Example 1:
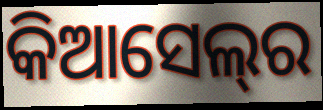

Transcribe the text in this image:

କିଆସେଲ୍‌ର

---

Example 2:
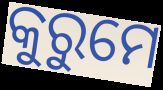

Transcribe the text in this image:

କୁରୁମେ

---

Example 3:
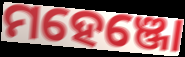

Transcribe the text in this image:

ମହେଞ୍ଜୋ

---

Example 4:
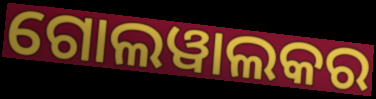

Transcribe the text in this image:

ଗୋଲୱାଲକର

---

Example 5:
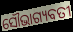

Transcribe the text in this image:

ସୌଭାଗ୍ୟବତୀ